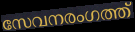
സേവനരംഗത്ത്